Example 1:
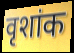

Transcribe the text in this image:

वृशांक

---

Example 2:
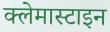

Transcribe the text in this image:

क्लेमास्टाइन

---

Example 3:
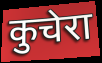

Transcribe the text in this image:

कुचेरा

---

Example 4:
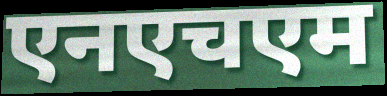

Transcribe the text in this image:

एनएचएम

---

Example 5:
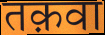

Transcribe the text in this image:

तक़वा